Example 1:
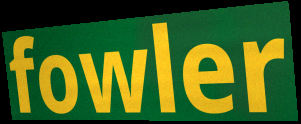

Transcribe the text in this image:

fowler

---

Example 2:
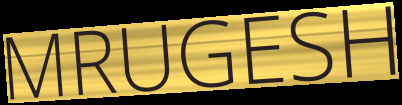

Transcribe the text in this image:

MRUGESH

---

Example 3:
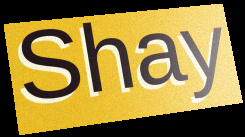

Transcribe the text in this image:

Shay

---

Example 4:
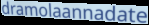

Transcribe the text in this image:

dramolaannadate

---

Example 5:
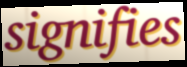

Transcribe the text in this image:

signifies